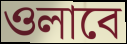
ওলাবে